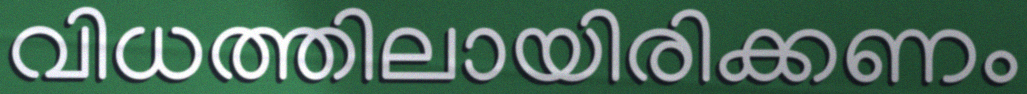
വിധത്തിലായിരിക്കണം